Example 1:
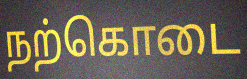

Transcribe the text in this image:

நற்கொடை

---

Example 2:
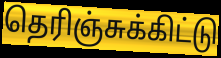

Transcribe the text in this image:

தெரிஞ்சுக்கிட்டு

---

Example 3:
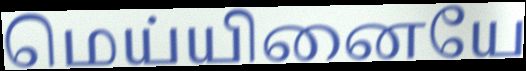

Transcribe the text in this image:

மெய்யினையே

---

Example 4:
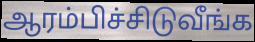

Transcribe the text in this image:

ஆரம்பிச்சிடுவீங்க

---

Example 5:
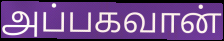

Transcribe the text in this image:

அப்பகவான்